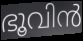
ഭൂവിൻ